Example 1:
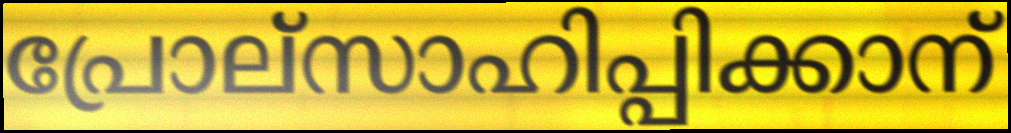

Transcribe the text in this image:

പ്രോല്സാഹിപ്പിക്കാന്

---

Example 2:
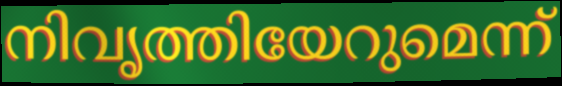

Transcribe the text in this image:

നിവൃത്തിയേറുമെന്ന്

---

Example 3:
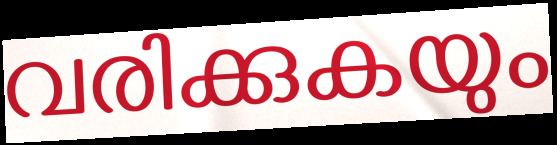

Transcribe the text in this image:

വരിക്കുകയും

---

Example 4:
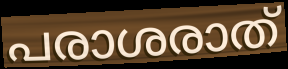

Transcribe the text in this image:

പരാശരാത്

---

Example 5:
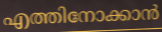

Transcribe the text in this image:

എത്തിനോക്കാൻ